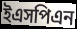
ইএসপিএন